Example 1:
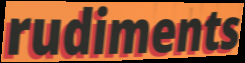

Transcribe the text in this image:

rudiments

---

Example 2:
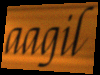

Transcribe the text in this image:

aagil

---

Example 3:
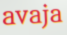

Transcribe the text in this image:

avaja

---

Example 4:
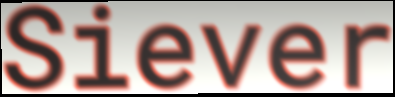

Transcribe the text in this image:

Siever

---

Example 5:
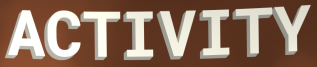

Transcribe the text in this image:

ACTIVITY